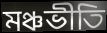
মঞ্চভীতি